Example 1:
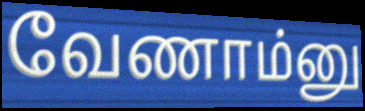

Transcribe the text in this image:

வேணாம்னு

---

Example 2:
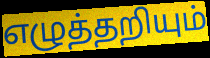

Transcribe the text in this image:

எழுத்தறியும்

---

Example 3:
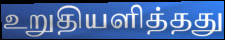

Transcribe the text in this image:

உறுதியளித்தது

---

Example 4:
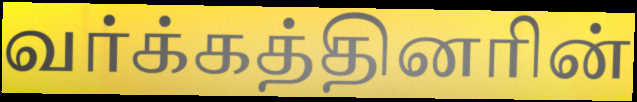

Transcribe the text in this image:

வர்க்கத்தினரின்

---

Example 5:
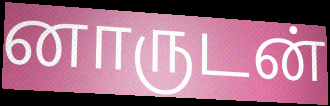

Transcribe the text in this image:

னாருடன்